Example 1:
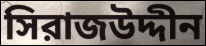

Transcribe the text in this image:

সিরাজউদ্দীন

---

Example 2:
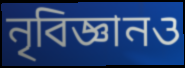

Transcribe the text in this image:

নৃবিজ্ঞানও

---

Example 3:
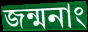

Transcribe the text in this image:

জন্মনাং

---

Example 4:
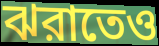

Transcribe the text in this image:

ঝরাতেও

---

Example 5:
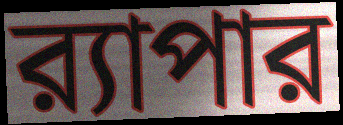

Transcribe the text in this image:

র‍্যাপার